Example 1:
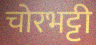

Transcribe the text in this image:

चोरभट्टी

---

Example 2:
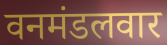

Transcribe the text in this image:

वनमंडलवार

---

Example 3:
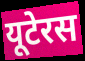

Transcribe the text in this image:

यूटेरस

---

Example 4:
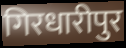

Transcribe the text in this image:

गिरधारीपुर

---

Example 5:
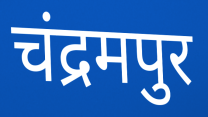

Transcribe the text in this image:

चंद्रमपुर